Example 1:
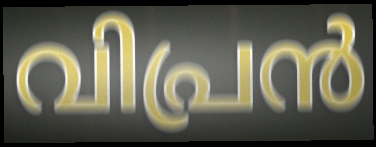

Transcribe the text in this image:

വിപ്രൻ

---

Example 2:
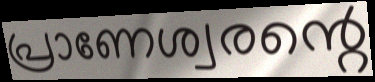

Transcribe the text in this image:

പ്രാണേശ്വരന്റെ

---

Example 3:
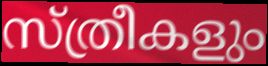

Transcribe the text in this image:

സ്ത്രീകളും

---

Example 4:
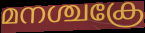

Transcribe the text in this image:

മനശ്ചക്രേ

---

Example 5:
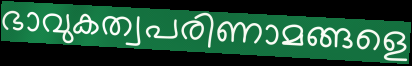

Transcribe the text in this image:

ഭാവുകത്വപരിണാമങ്ങളെ